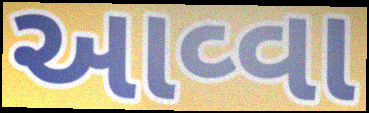
આવ્વા